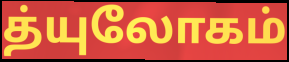
த்யுலோகம்